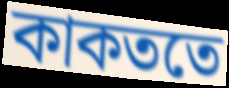
কাকততে